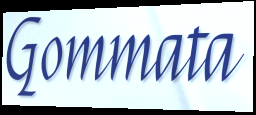
Gommata